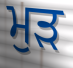
ਮੁੜ